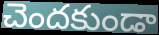
చెందకుండా